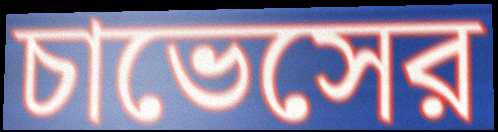
চাভেসের